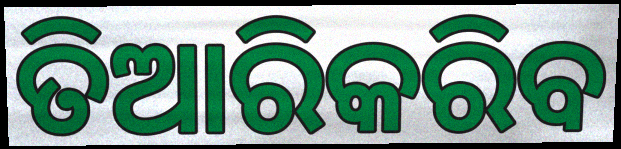
ତିଆରିକରିବ